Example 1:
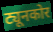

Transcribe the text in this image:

ट्यूनकोर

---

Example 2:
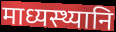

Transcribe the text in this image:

माध्यस्थ्यानि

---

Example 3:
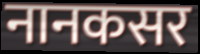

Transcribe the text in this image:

नानकसर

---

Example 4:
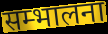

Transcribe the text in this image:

सम्भालना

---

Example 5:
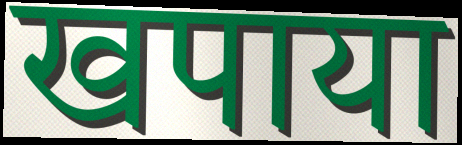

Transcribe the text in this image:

खपाया